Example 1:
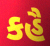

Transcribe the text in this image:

કહૈ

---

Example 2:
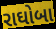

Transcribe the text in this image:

રાઘોબા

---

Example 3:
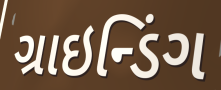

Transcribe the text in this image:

ગ્રાઇન્ડિંગ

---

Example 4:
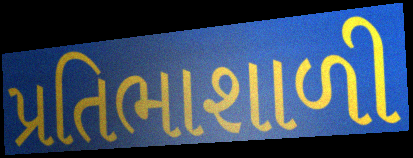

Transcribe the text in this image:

પ્રતિભાશાળી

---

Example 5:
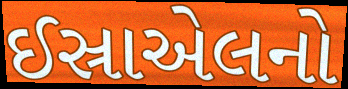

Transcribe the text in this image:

ઈસ્રાએલનો